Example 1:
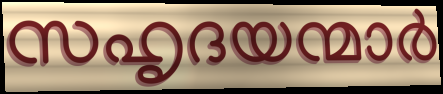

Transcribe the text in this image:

സഹൃദയന്മാർ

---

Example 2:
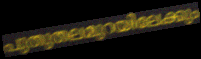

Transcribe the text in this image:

പുതുതലമുറയിലേക്കും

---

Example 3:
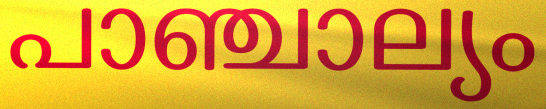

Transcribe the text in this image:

പാഞ്ചാല്യം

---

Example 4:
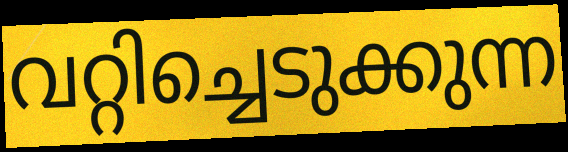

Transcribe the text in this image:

വറ്റിച്ചെടുക്കുന്ന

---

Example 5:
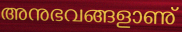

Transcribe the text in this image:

അനുഭവങ്ങളാണു്